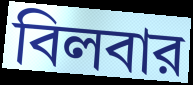
বিলবার